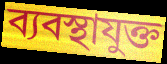
ব্যবস্থাযুক্ত